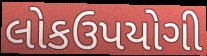
લોકઉપયોગી